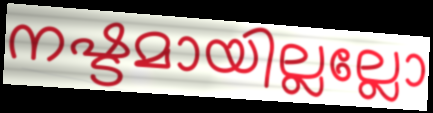
നഷ്ടമായില്ലല്ലോ